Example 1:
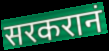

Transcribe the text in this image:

सरकरानं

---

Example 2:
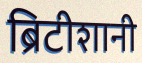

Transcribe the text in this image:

ब्रिटीशानी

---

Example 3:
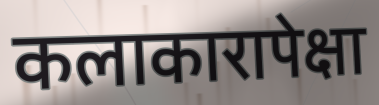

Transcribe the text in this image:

कलाकारापेक्षा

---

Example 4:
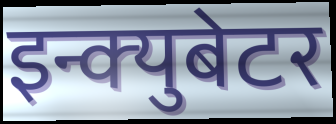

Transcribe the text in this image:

इन्क्‍युबेटर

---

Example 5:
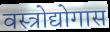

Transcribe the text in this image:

वस्त्रोद्योगास